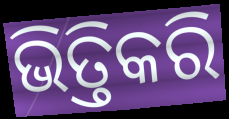
ଭିତ୍ତିକରି